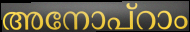
അനോപ്റാം